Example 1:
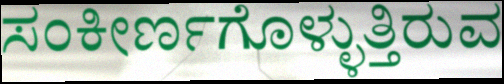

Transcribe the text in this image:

ಸಂಕೀರ್ಣಗೊಳ್ಳುತ್ತಿರುವ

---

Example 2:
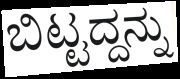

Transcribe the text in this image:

ಬಿಟ್ಟದ್ದನ್ನು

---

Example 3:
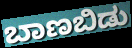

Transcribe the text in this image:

ಬಾಣಬಿಡು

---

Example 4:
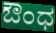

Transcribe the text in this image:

ಔಂಧ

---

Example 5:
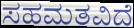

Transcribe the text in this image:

ಸಹಮತವಿದೆ